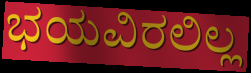
ಭಯವಿರಲಿಲ್ಲ